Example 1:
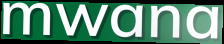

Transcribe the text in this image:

mwana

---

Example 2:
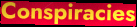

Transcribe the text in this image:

Conspiracies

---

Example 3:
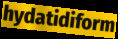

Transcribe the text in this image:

hydatidiform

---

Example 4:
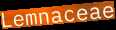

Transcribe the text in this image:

Lemnaceae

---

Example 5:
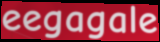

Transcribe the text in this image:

eegagale